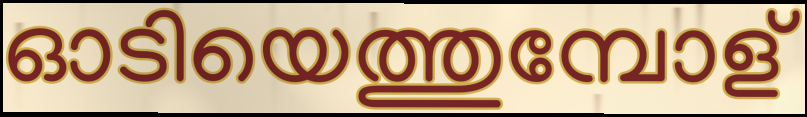
ഓടിയെത്തുമ്പോള്